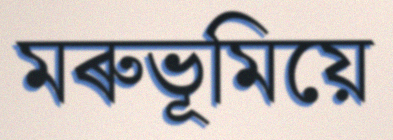
মৰুভূমিয়ে